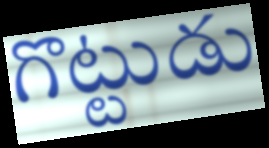
గొట్టుడు